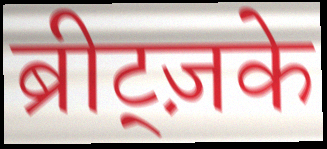
ब्रीट्ज़के